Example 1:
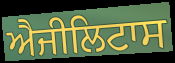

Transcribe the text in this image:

ਐਜੀਲਿਟਾਸ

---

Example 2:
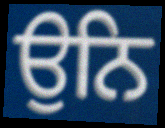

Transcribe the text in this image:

ਉਨਿ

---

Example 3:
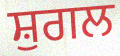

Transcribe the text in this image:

ਸ਼ੁਗਲ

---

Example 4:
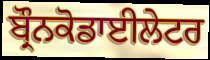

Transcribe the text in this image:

ਬ੍ਰੌਨਕੋਡਾਈਲੇਟਰ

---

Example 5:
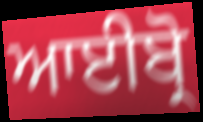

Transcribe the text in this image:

ਆਈਬ੍ਰੋ